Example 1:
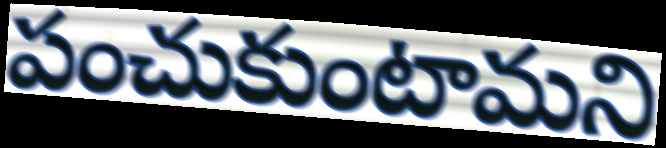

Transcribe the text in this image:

పంచుకుంటామని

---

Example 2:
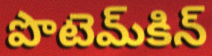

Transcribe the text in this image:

పొటెమ్‌కిన్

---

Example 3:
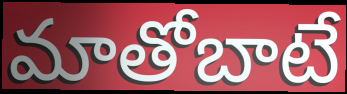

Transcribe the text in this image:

మాతోబాటే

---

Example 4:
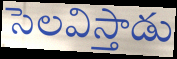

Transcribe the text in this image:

సెలవిస్తాడు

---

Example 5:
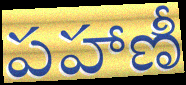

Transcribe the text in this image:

పహాణీ